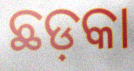
ଛଡ଼କା